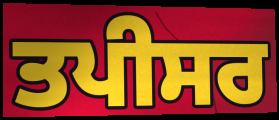
ਤਪੀਸਰ